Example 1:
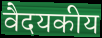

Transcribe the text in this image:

वैदयकीय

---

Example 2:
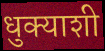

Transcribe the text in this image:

धुक्याशी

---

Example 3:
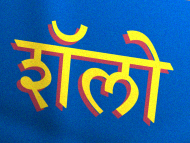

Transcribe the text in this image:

शॅलो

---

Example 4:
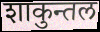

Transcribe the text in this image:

शाकुन्तल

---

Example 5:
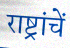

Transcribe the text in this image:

राष्ट्रांचें